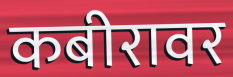
कबीरावर